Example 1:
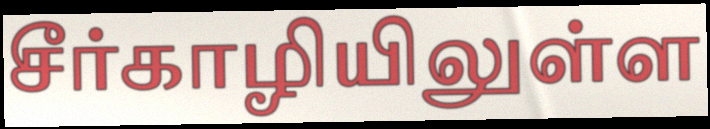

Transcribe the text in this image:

சீர்காழியிலுள்ள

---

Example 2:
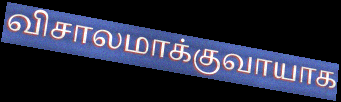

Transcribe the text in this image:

விசாலமாக்குவாயாக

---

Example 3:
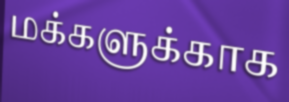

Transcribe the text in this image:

மக்களுக்காக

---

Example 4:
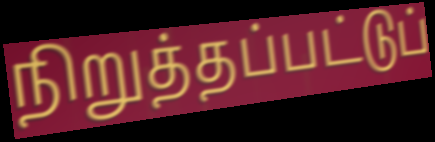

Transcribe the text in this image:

நிறுத்தப்பட்டுப்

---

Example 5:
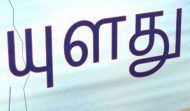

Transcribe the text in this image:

யுளது